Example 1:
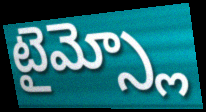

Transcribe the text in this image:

టైమ్స్లో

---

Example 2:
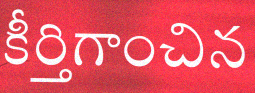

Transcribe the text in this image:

కీర్తిగాంచిన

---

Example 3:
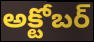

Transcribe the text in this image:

అక్టోబర్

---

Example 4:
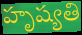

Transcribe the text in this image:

హృష్యతి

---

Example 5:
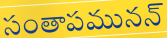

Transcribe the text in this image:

సంతాపమునన్